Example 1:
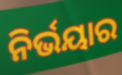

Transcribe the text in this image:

ନିର୍ଭୟାର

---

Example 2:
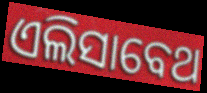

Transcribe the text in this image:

ଏଲିସାବେଥ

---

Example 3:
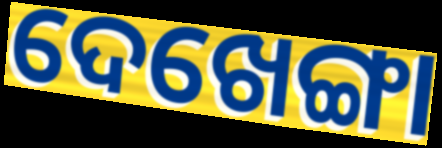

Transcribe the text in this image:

ଦେଖେଙ୍ଗା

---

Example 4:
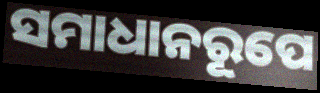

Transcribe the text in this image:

ସମାଧାନରୂପେ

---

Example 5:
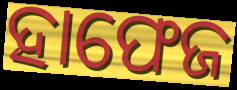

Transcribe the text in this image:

ହାଫେଜ